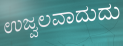
ಉಜ್ವಲವಾದುದು